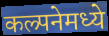
कल्पनेमध्ये